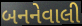
બનનેવાલી